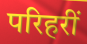
परिहरीं